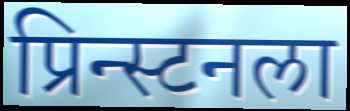
प्रिन्स्टनला